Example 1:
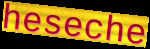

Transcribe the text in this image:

heseche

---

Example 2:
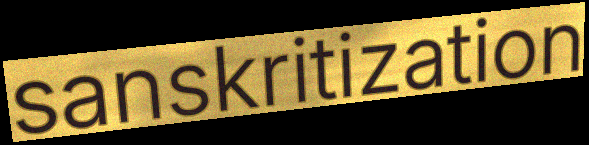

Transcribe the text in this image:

sanskritization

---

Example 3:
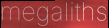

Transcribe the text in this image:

megaliths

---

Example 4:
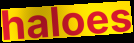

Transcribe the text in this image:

haloes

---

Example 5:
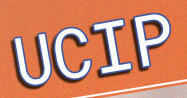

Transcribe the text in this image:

UCIP